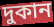
দুকান